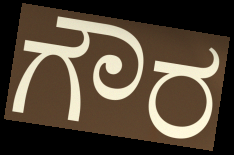
ಗೌರ